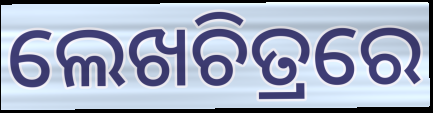
ଲେଖଚିତ୍ରରେ